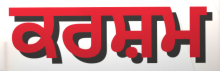
ਕਰਸ਼ਮ